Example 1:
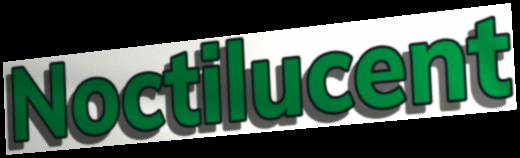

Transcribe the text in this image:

Noctilucent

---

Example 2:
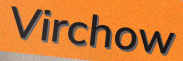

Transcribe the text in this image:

Virchow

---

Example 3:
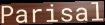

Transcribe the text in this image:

Parisal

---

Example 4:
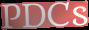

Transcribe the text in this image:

PDCs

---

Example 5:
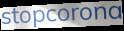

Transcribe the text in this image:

stopcorona